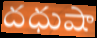
దధుషా